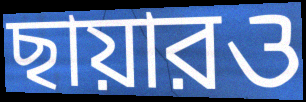
ছায়ারও